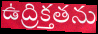
ఉద్రిక్తతను